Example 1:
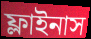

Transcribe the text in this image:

ফ্লাইনাস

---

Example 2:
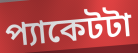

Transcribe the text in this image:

প্যাকেটটা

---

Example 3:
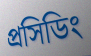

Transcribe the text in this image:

প্রসিডিং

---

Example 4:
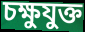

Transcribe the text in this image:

চক্ষুযুক্ত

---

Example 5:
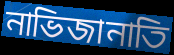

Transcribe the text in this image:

নাভিজানাতি